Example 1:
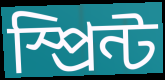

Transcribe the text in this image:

স্প্রিন্ট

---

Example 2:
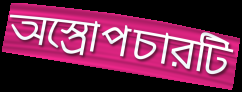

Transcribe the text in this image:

অস্ত্রোপচারটি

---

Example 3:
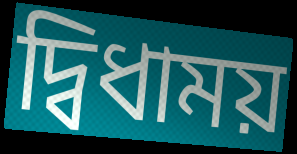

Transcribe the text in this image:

দ্বিধাময়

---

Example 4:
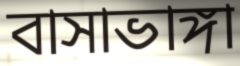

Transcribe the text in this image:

বাসাভাঙ্গা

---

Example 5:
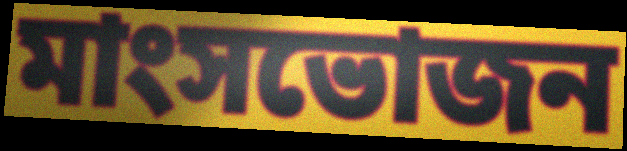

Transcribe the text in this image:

মাংসভোজন